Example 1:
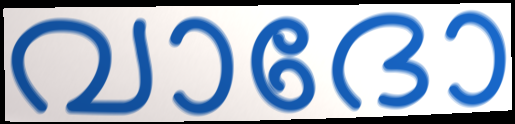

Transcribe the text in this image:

വാദോ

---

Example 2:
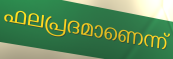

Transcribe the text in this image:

ഫലപ്രദമാണെന്ന്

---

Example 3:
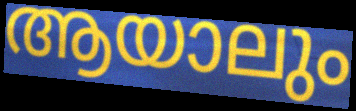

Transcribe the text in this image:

ആയാലും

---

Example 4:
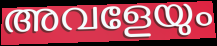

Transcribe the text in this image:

അവളേയും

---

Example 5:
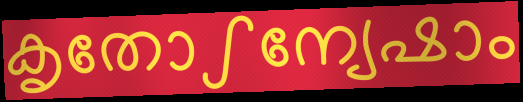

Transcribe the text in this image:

കൃതോഽന്യേഷാം